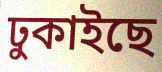
ঢুকাইছে